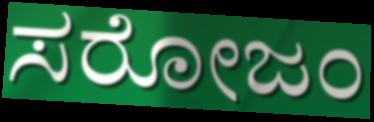
ಸರೋಜಂ